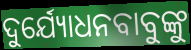
ଦୁର୍ଯ୍ୟୋଧନବାବୁଙ୍କୁ